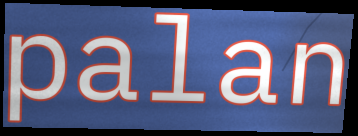
palan